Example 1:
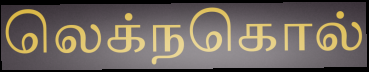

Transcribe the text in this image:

லெக்நகொல்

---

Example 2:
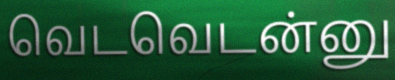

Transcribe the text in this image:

வெடவெடன்னு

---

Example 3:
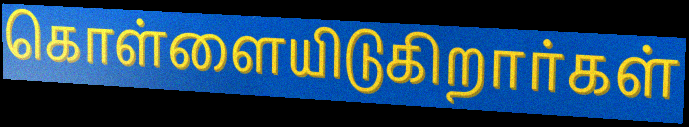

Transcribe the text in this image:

கொள்ளையிடுகிறார்கள்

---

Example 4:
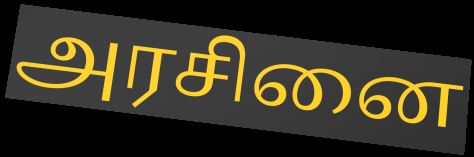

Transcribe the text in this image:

அரசினை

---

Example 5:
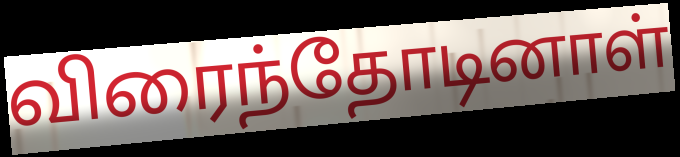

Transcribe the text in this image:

விரைந்தோடினாள்